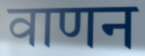
वाणन